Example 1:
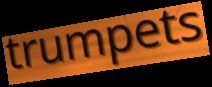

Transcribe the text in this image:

trumpets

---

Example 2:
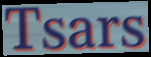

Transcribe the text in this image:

Tsars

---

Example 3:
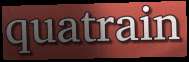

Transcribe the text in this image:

quatrain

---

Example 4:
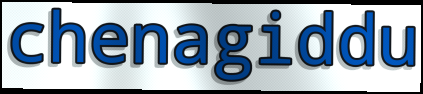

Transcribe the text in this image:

chenagiddu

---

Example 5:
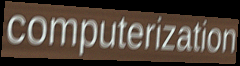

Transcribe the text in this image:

computerization